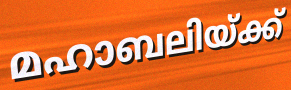
മഹാബലിയ്ക്ക്